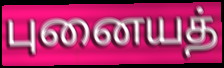
புனையத்